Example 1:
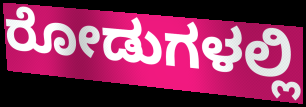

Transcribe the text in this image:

ರೋಡುಗಳಲ್ಲಿ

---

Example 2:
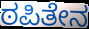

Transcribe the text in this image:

ಠಪಿತೇನ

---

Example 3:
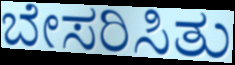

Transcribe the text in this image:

ಬೇಸರಿಸಿತು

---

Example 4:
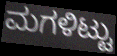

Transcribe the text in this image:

ಮಗಳಿಟ್ಟು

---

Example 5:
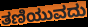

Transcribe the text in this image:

ತಣಿಯುವದು